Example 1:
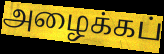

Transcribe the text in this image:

அழைக்கப்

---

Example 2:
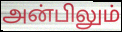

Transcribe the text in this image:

அன்பிலும்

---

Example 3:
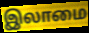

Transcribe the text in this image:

இலாமை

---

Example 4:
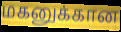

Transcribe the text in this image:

மகனுக்கான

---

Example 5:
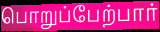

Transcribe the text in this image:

பொறுப்பேற்பார்